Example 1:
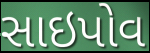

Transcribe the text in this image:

સાઇપોવ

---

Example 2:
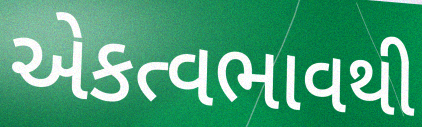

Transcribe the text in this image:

એકત્વભાવથી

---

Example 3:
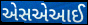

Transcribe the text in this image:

એસએઆઈ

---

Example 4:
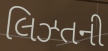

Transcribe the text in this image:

લિઝ્તની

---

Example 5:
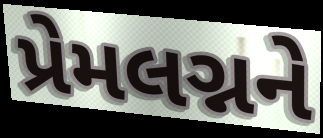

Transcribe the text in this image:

પ્રેમલગ્નને